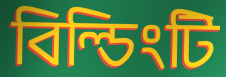
বিল্ডিংটি